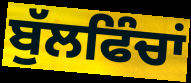
ਬੁੱਲਫਿੰਚਾਂ